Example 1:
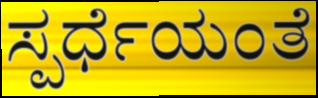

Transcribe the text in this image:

ಸ್ಪರ್ಧೆಯಂತೆ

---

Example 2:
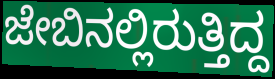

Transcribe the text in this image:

ಜೇಬಿನಲ್ಲಿರುತ್ತಿದ್ದ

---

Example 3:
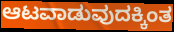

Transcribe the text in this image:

ಆಟವಾಡುವುದಕ್ಕಿಂತ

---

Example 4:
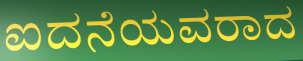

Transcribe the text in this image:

ಐದನೆಯವರಾದ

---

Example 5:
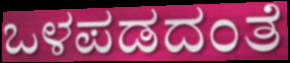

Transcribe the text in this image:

ಒಳಪಡದಂತೆ